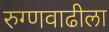
रुग्णवाढीला